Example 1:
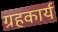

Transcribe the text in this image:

ग्रहकार्य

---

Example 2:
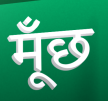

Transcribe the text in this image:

मूँछ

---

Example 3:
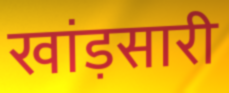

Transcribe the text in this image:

खांड़सारी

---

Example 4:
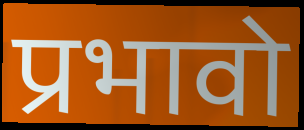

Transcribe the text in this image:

प्रभावो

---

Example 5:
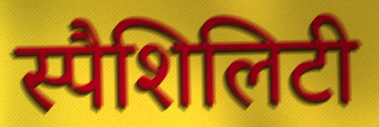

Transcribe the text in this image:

स्पैशिलिटी